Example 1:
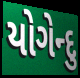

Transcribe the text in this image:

યોગેન્દુ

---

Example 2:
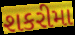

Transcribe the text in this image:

શકરીમા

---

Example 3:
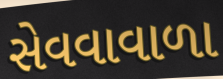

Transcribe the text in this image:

સેવવાવાળા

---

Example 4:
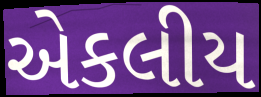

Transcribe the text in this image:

એકલીય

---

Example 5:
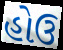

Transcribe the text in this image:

હોઉ